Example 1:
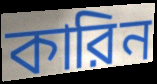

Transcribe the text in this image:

কারিন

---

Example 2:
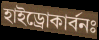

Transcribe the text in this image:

হাইড্রোকার্বনঃ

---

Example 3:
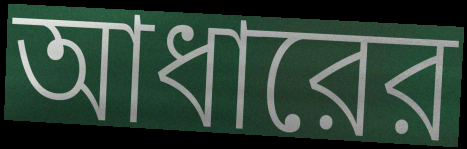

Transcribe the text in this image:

আধারের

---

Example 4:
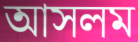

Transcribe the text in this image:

আসলম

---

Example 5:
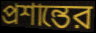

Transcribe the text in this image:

প্রশান্তের